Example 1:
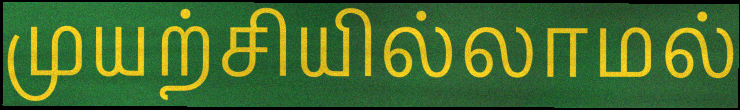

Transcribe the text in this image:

முயற்சியில்லாமல்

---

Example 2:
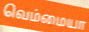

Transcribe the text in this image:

வெம்மையா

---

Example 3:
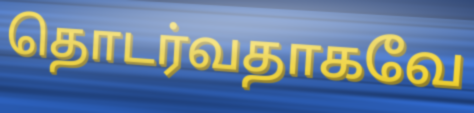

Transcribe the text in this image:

தொடர்வதாகவே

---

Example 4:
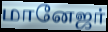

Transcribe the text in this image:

மானேஜர்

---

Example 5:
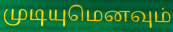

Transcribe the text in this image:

முடியுமெனவும்